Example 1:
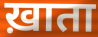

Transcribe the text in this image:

ख़ाता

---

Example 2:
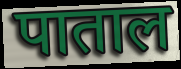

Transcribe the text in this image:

पाताल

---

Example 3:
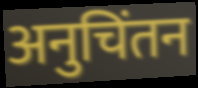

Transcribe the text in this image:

अनुचिंतन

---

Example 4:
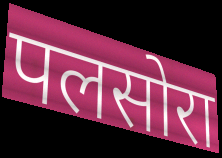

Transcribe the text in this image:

पलसोरा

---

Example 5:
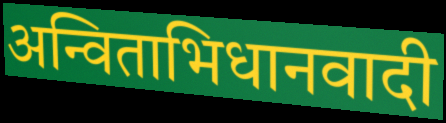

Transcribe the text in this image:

अन्विताभिधानवादी